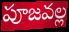
పూజవల్ల